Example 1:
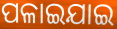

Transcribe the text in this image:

ପଳାଇଯାଇ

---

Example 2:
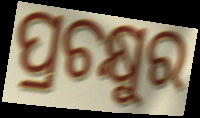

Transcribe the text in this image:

ପ୍ରଚକ୍ଷୁର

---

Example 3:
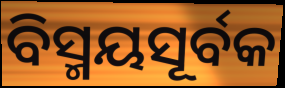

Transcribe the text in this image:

ବିସ୍ମୟସୂର୍ବକ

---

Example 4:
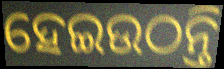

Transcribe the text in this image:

ହେଇଉଠନ୍ତି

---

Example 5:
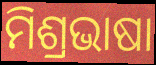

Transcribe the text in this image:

ମିଶ୍ରଭାଷା